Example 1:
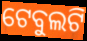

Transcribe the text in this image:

ଟେବୁଲଟି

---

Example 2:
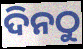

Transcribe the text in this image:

ଦିନଠୁ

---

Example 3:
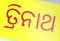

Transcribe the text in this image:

ତ୍ରିନାଥ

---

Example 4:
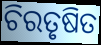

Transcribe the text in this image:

ଚିରତୃଷିତ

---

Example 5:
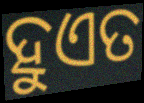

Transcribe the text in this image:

ହୁଏତ